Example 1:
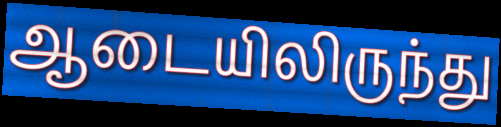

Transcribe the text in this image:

ஆடையிலிருந்து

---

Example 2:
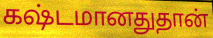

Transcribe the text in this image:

கஷ்டமானதுதான்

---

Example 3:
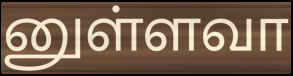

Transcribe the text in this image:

னுள்ளவா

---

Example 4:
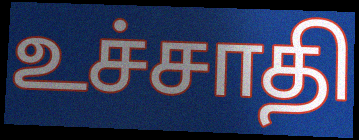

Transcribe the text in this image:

உச்சாதி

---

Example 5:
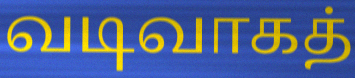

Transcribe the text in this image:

வடிவாகத்